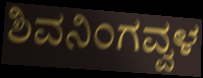
ಶಿವನಿಂಗವ್ವಳ